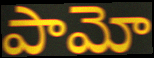
పామో